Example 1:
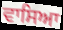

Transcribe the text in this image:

ਵਾਸਿਆ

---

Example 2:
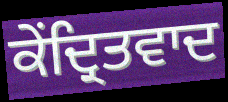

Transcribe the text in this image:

ਕੇਂਦ੍ਰਿਤਵਾਦ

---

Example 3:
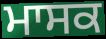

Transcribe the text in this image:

ਮਾਸਕ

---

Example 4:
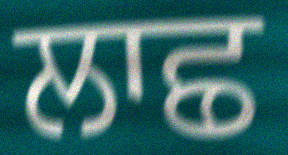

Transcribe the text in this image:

ਲਾਛ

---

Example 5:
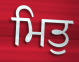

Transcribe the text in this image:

ਮਿਤੁ